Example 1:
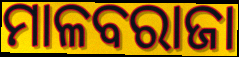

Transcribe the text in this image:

ମାଳବରାଜା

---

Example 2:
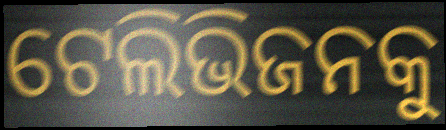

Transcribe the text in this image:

ଟେଲିଭିଜନକୁ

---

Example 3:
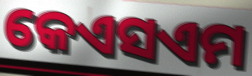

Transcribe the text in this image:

କେଏସଏମ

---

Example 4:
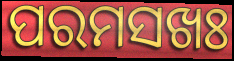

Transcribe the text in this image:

ପରମସଖଃ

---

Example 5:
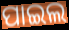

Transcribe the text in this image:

ପାଇଲ